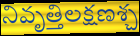
నివృత్తిలక్షణశ్చ